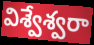
విశ్వేశ్వరా